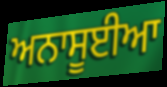
ਅਨਾਸੂਈਆ